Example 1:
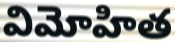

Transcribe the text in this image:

విమోహిత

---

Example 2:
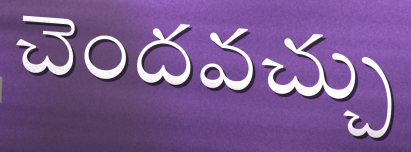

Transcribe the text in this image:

చెందవచ్చు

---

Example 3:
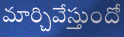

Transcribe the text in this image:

మార్చివేస్తుందో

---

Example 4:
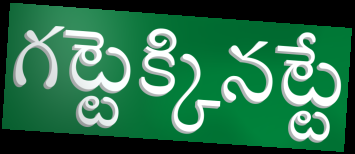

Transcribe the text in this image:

గట్టెక్కినట్టే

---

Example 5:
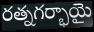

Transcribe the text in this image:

రత్నగర్భాయై